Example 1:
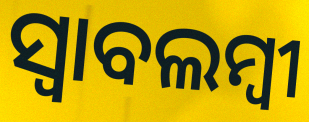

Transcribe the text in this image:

ସ୍ଵାବଲମ୍ଵୀ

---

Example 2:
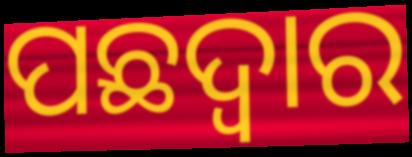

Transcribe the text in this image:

ପଛଦ୍ୱାର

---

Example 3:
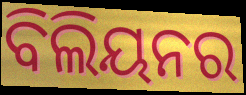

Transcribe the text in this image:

ବିଲିୟନର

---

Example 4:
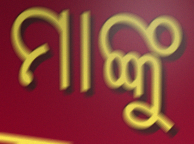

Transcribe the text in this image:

ମାଙ୍କୁ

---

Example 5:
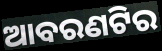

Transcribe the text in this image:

ଆବରଣଟିର